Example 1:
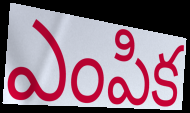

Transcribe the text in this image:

ఎంపిక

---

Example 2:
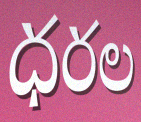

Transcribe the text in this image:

ధరల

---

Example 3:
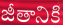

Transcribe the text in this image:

జీతానికి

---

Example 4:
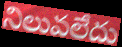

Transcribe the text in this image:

నిలువలేదు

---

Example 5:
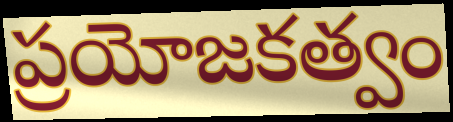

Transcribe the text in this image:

ప్రయోజకత్వం